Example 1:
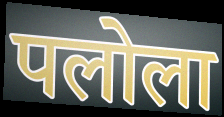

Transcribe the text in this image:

पलोला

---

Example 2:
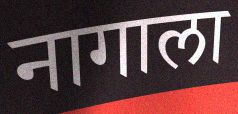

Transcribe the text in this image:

नागाला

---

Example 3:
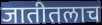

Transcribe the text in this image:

जातीतलाच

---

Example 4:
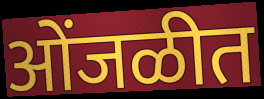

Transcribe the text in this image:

ओंजळीत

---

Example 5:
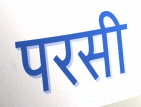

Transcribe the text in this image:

परसी